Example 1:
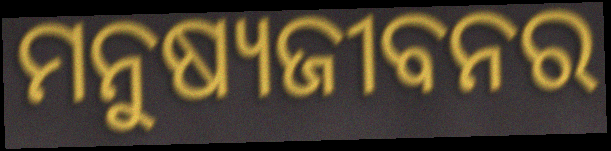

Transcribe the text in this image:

ମନୁଷ୍ୟଜୀବନର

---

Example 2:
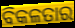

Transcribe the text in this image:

ବିକଳତାର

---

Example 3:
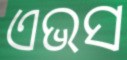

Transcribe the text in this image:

ଏଭସ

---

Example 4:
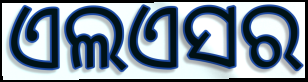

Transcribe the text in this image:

ଏଲଏସର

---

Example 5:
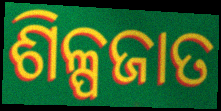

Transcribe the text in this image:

ଶିଳ୍ପଜାତ